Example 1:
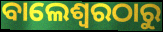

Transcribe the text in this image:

ବାଲେଶ୍ବରଠାରୁ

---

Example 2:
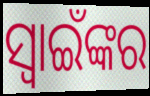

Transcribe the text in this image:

ସ୍ଵାଇଁଙ୍କର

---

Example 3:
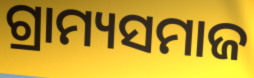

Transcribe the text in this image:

ଗ୍ରାମ୍ୟସମାଜ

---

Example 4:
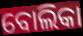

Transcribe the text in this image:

ବୋଲିକା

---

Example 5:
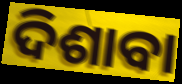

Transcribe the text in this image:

ଦିଶାବା